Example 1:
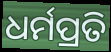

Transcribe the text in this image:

ଧର୍ମପ୍ରତି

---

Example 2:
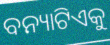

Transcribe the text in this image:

ବନ୍ୟାଟିଏକୁ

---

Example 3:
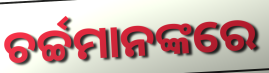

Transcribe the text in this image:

ଚର୍ଚ୍ଚମାନଙ୍କରେ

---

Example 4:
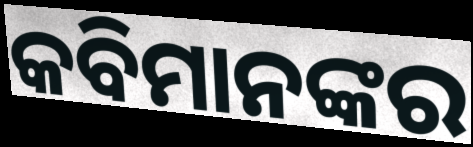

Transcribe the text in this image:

କବିମାନଙ୍କର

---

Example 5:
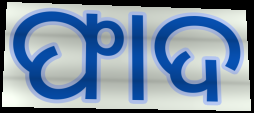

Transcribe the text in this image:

ଫାଦ